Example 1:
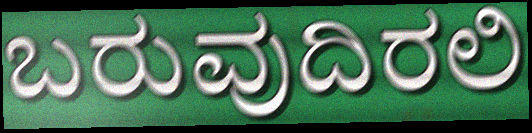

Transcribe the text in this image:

ಬರುವುದಿರಲಿ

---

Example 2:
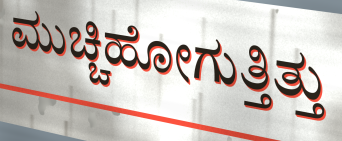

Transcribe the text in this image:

ಮುಚ್ಚಿಹೋಗುತ್ತಿತ್ತು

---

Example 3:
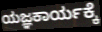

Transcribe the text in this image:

ಯಜ್ಞಕಾರ್ಯಕ್ಕೆ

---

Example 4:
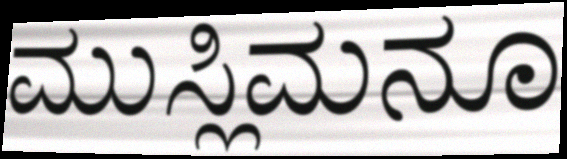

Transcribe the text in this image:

ಮುಸ್ಲಿಮನೂ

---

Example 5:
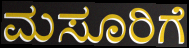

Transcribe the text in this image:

ಮಸೂರಿಗೆ